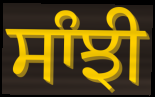
ਸਾੰਝੀ